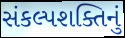
સંકલ્પશક્તિનું